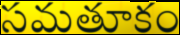
సమతూకం